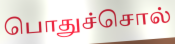
பொதுச்சொல்